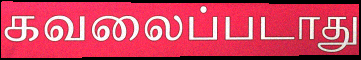
கவலைப்படாது